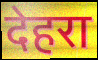
देहरा